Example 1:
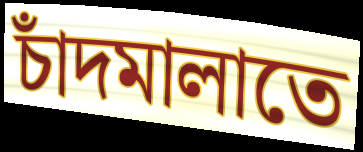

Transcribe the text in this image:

চাঁদমালাতে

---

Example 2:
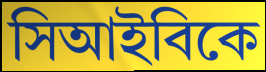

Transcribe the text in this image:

সিআইবিকে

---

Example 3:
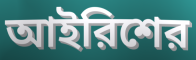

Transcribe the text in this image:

আইরিশের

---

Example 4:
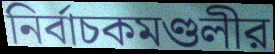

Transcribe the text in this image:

নির্বাচকমণ্ডলীর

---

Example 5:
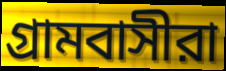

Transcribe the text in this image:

গ্রামবাসীরা